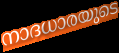
നാദധാരയുടെ